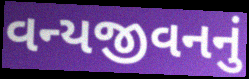
વન્યજીવનનું